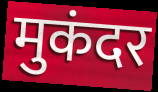
मुकंदर